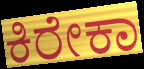
ಕಿರೇಕಾ